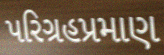
પરિગ્રહપ્રમાણ